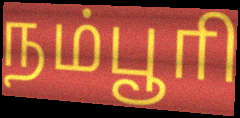
நம்பூரி